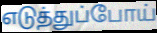
எடுத்துப்போய்